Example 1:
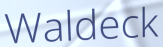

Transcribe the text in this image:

Waldeck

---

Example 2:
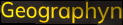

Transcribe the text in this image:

Geographyn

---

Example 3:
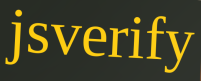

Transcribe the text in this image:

jsverify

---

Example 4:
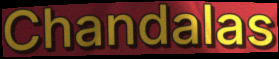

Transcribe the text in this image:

Chandalas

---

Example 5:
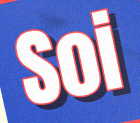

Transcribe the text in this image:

Soi